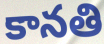
కానతి